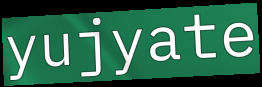
yujyate